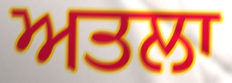
ਅਤਲਾ